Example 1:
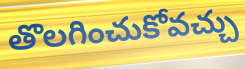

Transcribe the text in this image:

తొలగించుకోవచ్చు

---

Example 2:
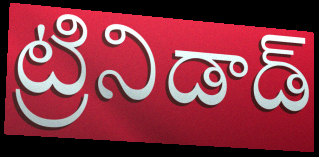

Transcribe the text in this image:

ట్రినిడాడ్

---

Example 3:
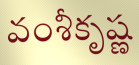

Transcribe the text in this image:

వంశీకృష్ణ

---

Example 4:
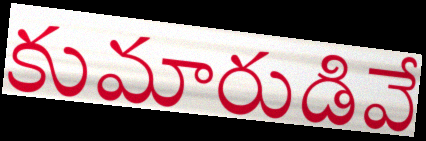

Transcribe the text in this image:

కుమారుడివే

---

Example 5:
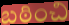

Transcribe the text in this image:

బఠించి